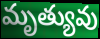
మృత్యువు